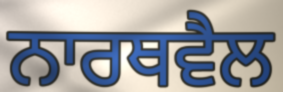
ਨਾਰਥਵੈਲ